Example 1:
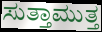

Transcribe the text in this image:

ಸುತ್ತಾಮುತ್ತ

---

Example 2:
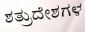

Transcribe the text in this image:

ಶತ್ರುದೇಶಗಳ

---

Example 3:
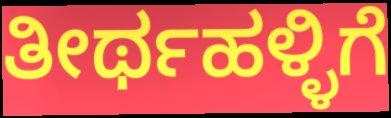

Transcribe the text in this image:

ತೀರ್ಥಹಳ್ಳಿಗೆ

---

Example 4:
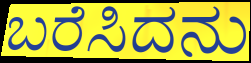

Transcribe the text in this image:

ಬರೆಸಿದನು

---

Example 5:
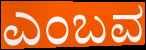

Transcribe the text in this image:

ಎಂಬವ